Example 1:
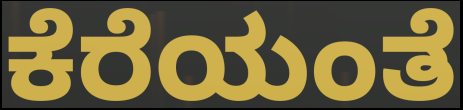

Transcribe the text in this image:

ಕೆರೆಯಂತೆ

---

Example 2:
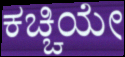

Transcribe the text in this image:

ಕಚ್ಚಿಯೇ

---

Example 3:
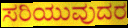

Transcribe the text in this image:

ಸರಿಯುವುದರ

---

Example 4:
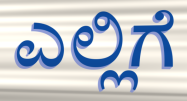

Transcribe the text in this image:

ಎಲ್ಲಿಗೆ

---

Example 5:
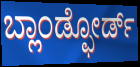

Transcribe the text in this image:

ಬ್ಲಾಂಡ್ಫೋರ್ಡ್